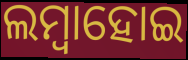
ଲମ୍ୱାହୋଇ